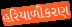
હરિયાળીકરણ